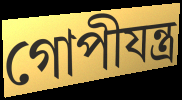
গোপীযন্ত্র